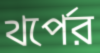
থর্পের